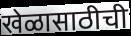
खेळासाठीची